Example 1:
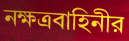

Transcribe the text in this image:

নক্ষত্রবাহিনীর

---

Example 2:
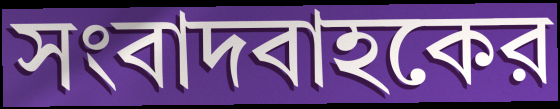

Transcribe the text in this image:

সংবাদবাহকের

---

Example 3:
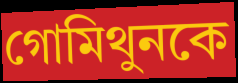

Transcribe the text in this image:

গোমিথুনকে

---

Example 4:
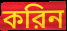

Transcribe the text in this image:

করিন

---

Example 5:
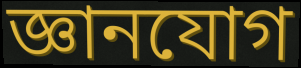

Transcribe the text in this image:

জ্ঞানযোগ